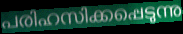
പരിഹസിക്കപ്പെടുന്നു